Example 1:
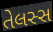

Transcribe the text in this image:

તેલસ્સ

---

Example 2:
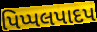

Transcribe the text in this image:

પિપ્પલપાદપ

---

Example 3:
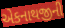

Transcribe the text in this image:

એકનાથજીની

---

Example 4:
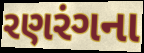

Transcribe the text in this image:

રણરંગના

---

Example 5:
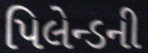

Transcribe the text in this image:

પિલેન્ડની